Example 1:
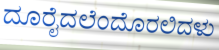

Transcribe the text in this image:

ದೂರೈದಲೆಂದೊರಲಿದಳು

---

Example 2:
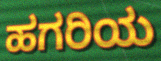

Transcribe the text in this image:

ಹಗರಿಯ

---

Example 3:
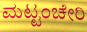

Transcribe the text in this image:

ಮಟ್ಟಂಚೇರಿ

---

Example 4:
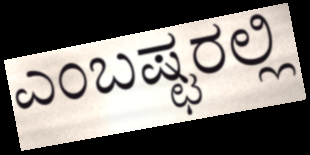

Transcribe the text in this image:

ಎಂಬಷ್ಟರಲ್ಲಿ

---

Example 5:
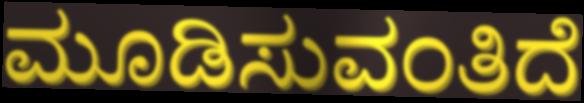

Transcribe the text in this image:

ಮೂಡಿಸುವಂತಿದೆ